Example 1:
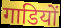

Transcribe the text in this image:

गाडियों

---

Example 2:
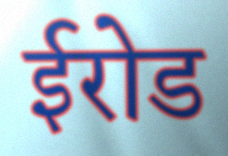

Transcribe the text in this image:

ईरोड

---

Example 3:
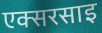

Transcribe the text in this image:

एक्सरसाइ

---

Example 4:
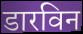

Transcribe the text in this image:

डारविन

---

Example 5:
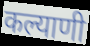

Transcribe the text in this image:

कल्याणी